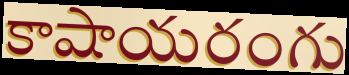
కాషాయరంగు